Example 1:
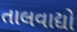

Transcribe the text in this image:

તાલવાદ્યો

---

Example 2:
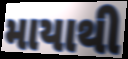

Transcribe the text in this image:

માયાથી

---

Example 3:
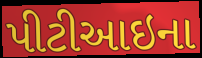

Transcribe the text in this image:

પીટીઆઇના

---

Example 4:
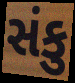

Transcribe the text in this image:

સંકુ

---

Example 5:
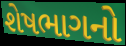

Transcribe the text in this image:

શેષભાગનો